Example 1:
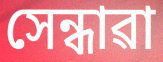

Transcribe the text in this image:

সেন্ধাৱা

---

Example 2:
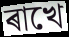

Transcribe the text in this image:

ৰাখে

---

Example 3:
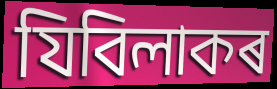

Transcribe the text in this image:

যিবিলাকৰ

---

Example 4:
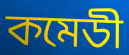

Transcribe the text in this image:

কমেডী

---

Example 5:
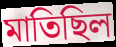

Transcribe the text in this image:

মাতিছিল